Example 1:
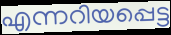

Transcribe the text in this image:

എന്നറിയപ്പെട്ട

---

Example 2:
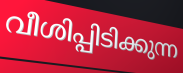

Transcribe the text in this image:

വീശിപ്പിടിക്കുന്ന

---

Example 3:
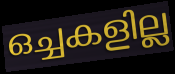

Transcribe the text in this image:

ഒച്ചകളില്ല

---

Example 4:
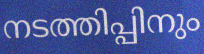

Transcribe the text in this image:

നടത്തിപ്പിനും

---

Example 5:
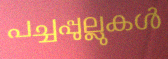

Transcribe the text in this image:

പച്ചപ്പുല്ലുകൾ